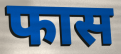
फास